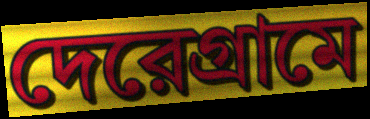
দেরেগ্রামে